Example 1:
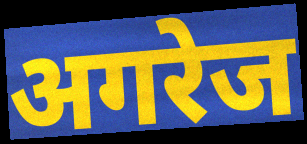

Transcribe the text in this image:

अगरेज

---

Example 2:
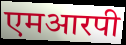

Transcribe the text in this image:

एमआरपी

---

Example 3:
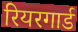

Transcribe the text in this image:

रियरगार्ड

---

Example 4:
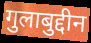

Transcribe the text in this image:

गुलाबुद्दीन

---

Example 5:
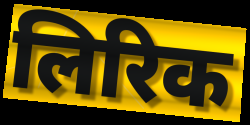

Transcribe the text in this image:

लिरिक